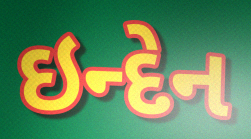
ઇન્દેન